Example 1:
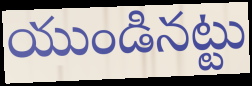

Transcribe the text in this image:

యుండినట్టు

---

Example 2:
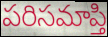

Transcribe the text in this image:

పరిసమాప్తి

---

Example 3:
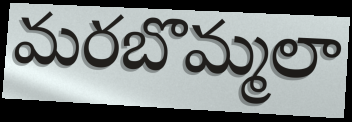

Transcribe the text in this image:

మరబొమ్మలా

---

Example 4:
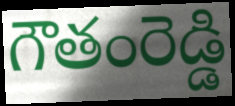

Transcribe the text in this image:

గౌతంరెడ్డి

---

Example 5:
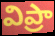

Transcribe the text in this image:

విప్రా